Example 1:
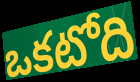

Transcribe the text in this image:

ఒకటోది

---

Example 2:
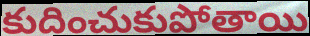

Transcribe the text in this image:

కుదించుకుపోతాయి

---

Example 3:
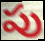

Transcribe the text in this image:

పు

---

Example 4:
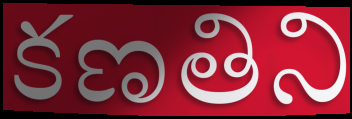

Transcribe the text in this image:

కణతిని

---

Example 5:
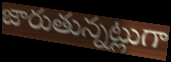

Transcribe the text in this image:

జారుతున్నట్లుగా